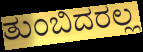
ತುಂಬಿದರಲ್ಲ